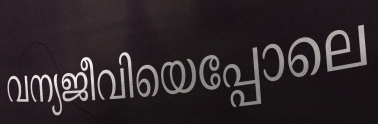
വന്യജീവിയെപ്പോലെ